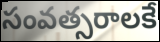
సంవత్సరాలకే